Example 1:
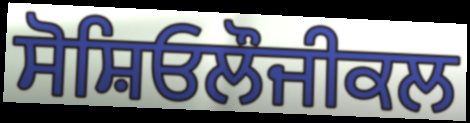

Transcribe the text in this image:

ਸੋਸ਼ਿਓਲੌਜੀਕਲ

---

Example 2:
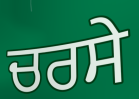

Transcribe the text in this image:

ਚਰਸੇ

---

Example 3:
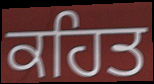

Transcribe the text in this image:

ਕਹਿਤ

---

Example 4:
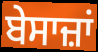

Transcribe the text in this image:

ਬੇਸਾਜ਼ਾਂ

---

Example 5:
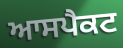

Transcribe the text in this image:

ਆਸਪੈਕਟ